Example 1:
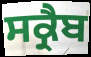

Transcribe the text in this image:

ਸਕ੍ਰੈਬ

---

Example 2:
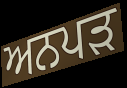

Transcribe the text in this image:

ਅਨਪੜ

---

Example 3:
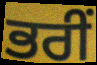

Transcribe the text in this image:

ਭਰੀਂ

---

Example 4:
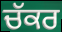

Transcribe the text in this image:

ਚੱਕਰ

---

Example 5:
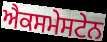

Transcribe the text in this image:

ਐਕਸਮੇਸਟੇਨ